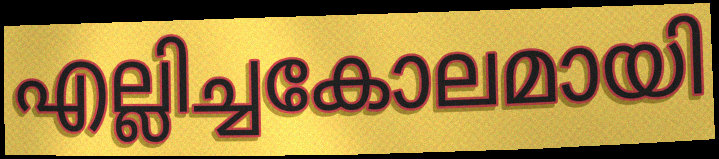
എല്ലിച്ചകോലമായി